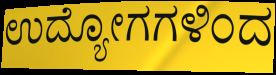
ಉದ್ಯೋಗಗಳಿಂದ